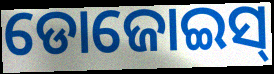
ଡୋଜୋଇସ୍